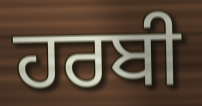
ਹਰਬੀ